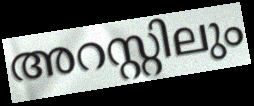
അറസ്റ്റിലും